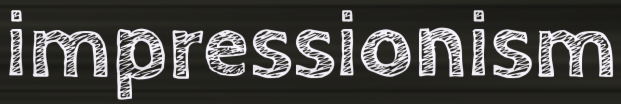
impressionism